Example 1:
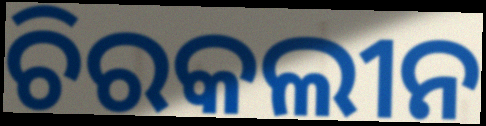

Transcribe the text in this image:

ଚିରକଲୀନ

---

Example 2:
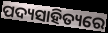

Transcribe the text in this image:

ପଦ୍ୟସାହିତ୍ୟରେ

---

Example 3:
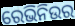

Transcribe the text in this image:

ରେଭିନିଉର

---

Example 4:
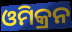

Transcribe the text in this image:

ଓମିକ୍ରନ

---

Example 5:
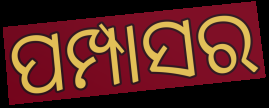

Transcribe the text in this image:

ପମ୍ପାସର